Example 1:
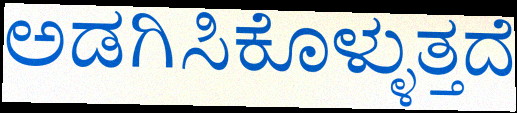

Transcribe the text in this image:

ಅಡಗಿಸಿಕೊಳ್ಳುತ್ತದೆ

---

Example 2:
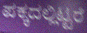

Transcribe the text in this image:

ಪಕ್ಕದಲ್ಲಿಟ್ಟರೆ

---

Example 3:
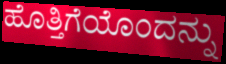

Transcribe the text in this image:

ಹೊತ್ತಿಗೆಯೊಂದನ್ನು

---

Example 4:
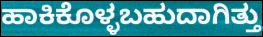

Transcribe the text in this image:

ಹಾಕಿಕೊಳ್ಳಬಹುದಾಗಿತ್ತು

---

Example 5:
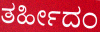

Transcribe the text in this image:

ತರ್ಹೀದಂ